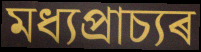
মধ্যপ্ৰাচ্যৰ